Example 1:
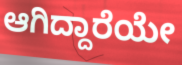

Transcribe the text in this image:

ಆಗಿದ್ದಾರೆಯೇ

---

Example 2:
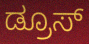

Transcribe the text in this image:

ಡ್ರೂಸ್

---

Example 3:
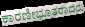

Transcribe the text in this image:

ಕಾರಣೀಭೂತರಾದರು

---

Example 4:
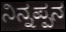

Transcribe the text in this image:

ನಿನ್ನಪ್ಪನ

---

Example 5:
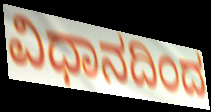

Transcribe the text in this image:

ವಿಧಾನದಿಂದ